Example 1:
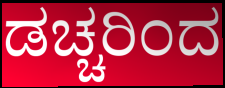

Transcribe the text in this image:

ಡಚ್ಚರಿಂದ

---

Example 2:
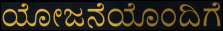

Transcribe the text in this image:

ಯೋಜನೆಯೊಂದಿಗೆ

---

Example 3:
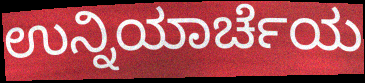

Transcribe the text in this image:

ಉನ್ನಿಯಾರ್ಚೆಯ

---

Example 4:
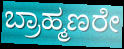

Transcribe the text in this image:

ಬ್ರಾಹ್ಮಣರೇ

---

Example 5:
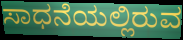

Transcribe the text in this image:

ಸಾಧನೆಯಲ್ಲಿರುವ